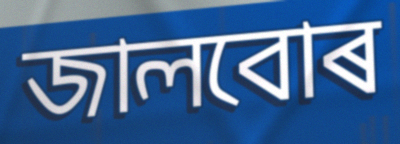
জালবোৰ